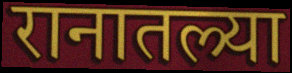
रानातल्या